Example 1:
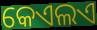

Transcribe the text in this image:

କେଏଲଏ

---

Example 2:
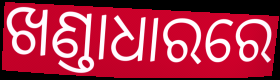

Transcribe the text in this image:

ଖଣ୍ଡାଧାରରେ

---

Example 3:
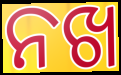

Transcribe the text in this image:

ନଖ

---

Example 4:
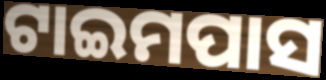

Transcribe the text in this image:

ଟାଇମପାସ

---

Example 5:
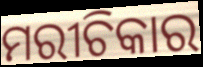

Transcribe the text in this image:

ମରୀଚିକାର